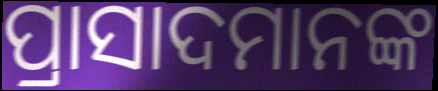
ପ୍ରାସାଦମାନଙ୍କ